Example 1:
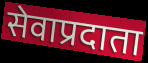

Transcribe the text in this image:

सेवाप्रदाता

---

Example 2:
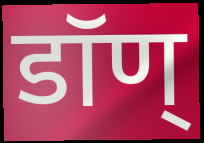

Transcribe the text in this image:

डॉण्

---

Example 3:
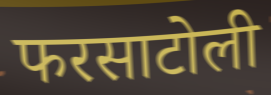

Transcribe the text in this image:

फरसाटोली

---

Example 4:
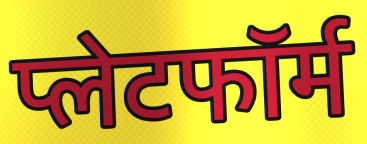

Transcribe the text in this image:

प्लेटफॉर्म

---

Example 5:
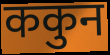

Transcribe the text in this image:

ककुन